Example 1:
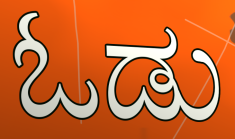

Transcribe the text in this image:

ಓಡು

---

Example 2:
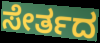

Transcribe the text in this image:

ಸೇರ್ತದ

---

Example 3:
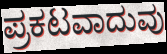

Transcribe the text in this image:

ಪ್ರಕಟವಾದುವು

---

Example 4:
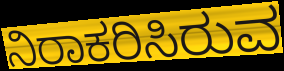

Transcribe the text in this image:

ನಿರಾಕರಿಸಿರುವ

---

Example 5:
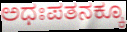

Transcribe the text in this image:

ಅಧಃಪತನಕ್ಕೂ